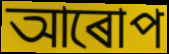
আৰোপ